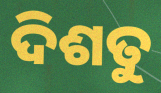
ଦିଶତୁ